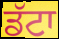
ਡੱਟਾ